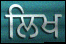
ਲਿਖ